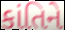
કાંતિને